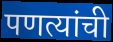
पणत्यांची